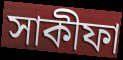
সাকীফা